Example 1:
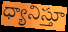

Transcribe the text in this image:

ధ్యానిస్తూ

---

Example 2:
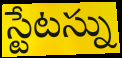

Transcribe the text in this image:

స్టేటస్ను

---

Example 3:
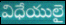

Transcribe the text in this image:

విధేయులై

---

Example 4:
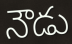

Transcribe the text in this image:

నౌడు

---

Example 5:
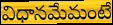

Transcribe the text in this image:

విధానమేమంటే